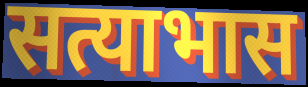
सत्याभास